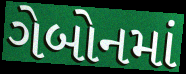
ગેબોનમાં